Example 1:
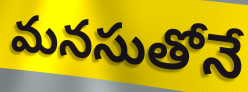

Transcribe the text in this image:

మనసుతోనే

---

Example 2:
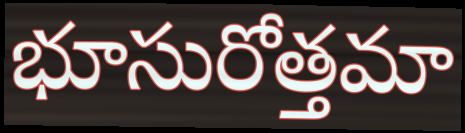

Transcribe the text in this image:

భూసురోత్తమా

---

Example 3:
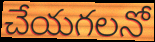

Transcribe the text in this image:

చేయగలనో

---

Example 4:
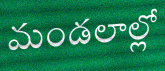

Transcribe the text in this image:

మండలాల్లో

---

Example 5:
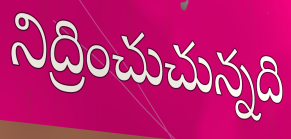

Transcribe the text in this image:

నిద్రించుచున్నది